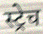
स्ट्रेच